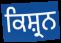
ਕਿਸ਼੍ਰਨ